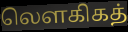
லௌகிகத்